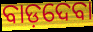
ବାଡ଼ଦେବା